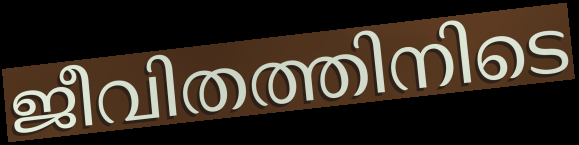
ജീവിതത്തിനിടെ